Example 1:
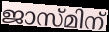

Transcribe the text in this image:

ജാസ്മിന്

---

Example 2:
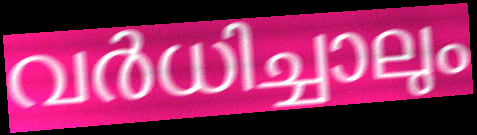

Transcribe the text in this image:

വർധിച്ചാലും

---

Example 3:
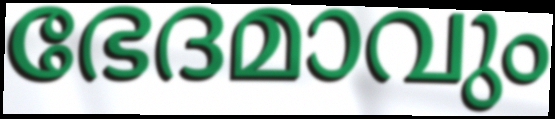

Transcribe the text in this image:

ഭേദമാവും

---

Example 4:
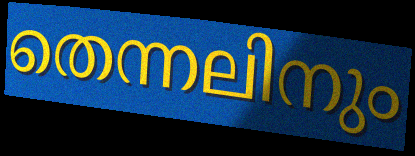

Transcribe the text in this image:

തെന്നലിനും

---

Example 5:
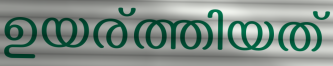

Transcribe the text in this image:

ഉയര്ത്തിയത്